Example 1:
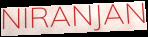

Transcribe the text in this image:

NIRANJAN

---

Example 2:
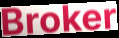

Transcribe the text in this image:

Broker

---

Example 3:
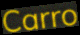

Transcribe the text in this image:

Carro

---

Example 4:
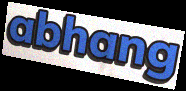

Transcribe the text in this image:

abhang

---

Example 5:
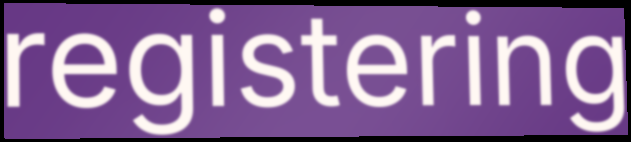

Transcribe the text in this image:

registering